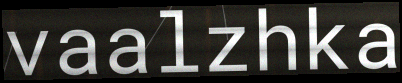
vaalzhka